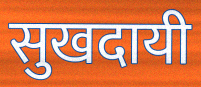
सुखदायी